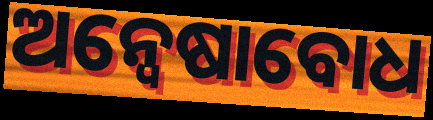
ଅନ୍ୱେଷାବୋଧ